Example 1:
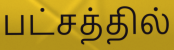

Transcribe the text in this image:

பட்சத்தில்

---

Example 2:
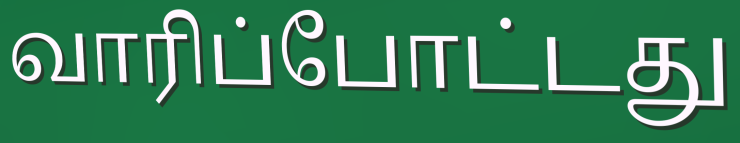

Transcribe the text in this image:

வாரிப்போட்டது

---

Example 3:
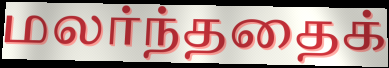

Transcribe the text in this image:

மலர்ந்ததைக்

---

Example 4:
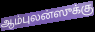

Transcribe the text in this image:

ஆம்புலன்ஸுக்கு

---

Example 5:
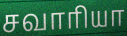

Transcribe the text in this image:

சவாரியா